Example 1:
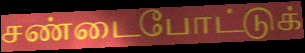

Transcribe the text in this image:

சண்டைபோட்டுக்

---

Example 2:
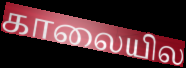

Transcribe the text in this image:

காலையில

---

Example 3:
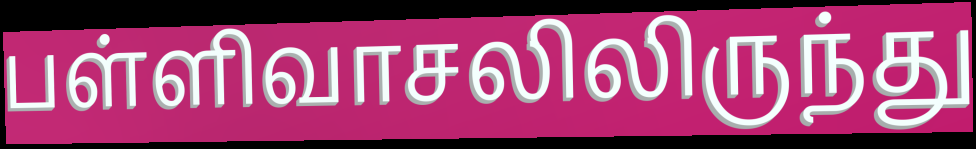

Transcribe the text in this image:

பள்ளிவாசலிலிருந்து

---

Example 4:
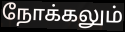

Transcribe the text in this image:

நோக்கலும்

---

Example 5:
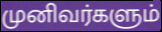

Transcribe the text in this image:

முனிவர்களும்